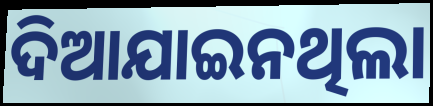
ଦିଆଯାଇନଥିଲା